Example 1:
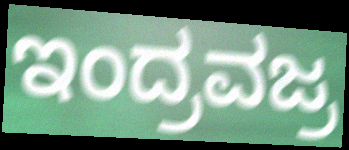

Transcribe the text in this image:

ಇಂದ್ರವಜ್ರ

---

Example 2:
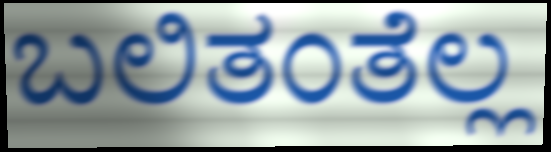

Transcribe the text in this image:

ಬಲಿತಂತೆಲ್ಲ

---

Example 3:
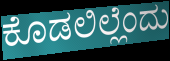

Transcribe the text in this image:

ಕೊಡಲಿಲ್ಲೆಂದು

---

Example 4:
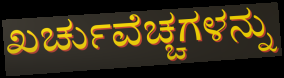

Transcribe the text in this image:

ಖರ್ಚುವೆಚ್ಚಗಳನ್ನು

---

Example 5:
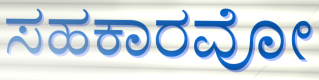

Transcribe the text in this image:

ಸಹಕಾರವೋ